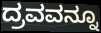
ದ್ರವವನ್ನೂ